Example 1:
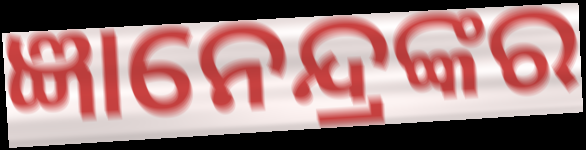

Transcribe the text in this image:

ଜ୍ଞାନେନ୍ଦ୍ରଙ୍କର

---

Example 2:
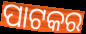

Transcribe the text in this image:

ପାଟକର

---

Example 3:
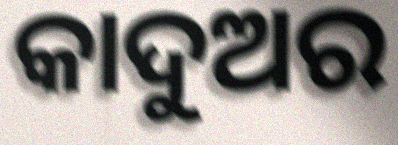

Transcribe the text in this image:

କାଦୁଅର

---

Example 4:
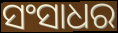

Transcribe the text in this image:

ସଂସାଧର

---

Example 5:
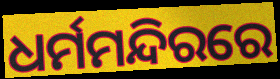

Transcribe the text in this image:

ଧର୍ମମନ୍ଦିରରେ